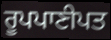
ਰੂਪਪਾਣੀਪਤ